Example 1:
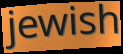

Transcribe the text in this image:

jewish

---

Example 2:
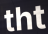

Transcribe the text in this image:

tht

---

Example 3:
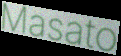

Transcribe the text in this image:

Masato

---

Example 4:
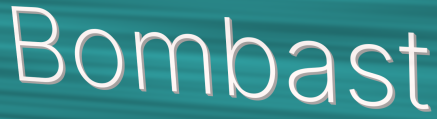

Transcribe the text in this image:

Bombast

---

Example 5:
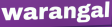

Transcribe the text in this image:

warangal